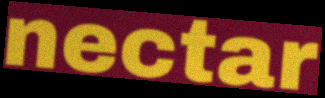
nectar